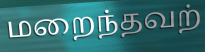
மறைந்தவற்